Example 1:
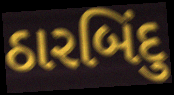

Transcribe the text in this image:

ઠારબિંદુ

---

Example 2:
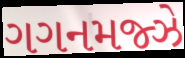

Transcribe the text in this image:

ગગનમજ્ઝે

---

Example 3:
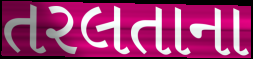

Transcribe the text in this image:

તરલતાના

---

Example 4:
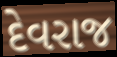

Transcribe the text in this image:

દેવરાજ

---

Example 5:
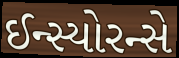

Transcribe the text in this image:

ઈન્સ્યોરન્સે